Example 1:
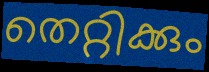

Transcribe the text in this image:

തെറ്റിക്കും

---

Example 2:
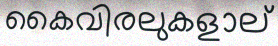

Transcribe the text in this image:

കൈവിരലുകളാല്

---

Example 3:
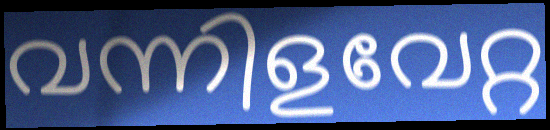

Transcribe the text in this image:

വന്നിളവേറ്റ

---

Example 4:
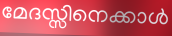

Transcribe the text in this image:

മേദസ്സിനെക്കാൾ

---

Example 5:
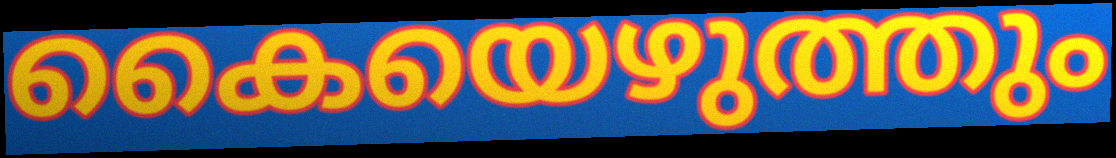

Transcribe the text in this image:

കൈയെഴുത്തും